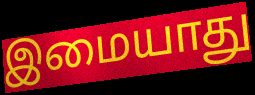
இமையாது